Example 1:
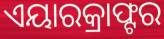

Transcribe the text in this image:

ଏୟାରକ୍ରାଫ୍ଟର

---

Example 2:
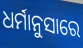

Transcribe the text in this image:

ଧର୍ମାନୁସାରେ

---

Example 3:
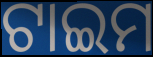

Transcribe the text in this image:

ଟାଇମ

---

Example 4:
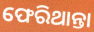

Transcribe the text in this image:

ଫେରିଥାନ୍ତା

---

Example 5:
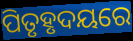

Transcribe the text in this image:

ପିତୃହୃଦୟରେ